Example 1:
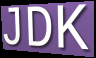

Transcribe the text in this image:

JDK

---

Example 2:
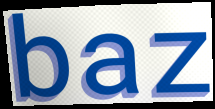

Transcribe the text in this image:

baz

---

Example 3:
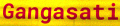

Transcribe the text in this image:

Gangasati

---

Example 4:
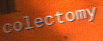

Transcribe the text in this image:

colectomy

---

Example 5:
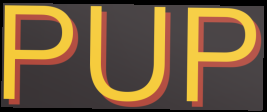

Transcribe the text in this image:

PUP